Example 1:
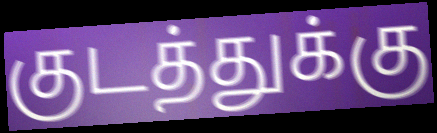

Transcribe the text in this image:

குடத்துக்கு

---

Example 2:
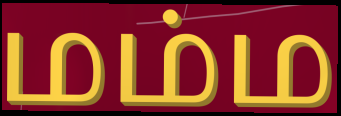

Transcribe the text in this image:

மம்ம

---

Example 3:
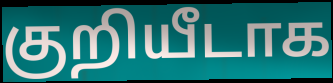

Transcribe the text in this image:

குறியீடாக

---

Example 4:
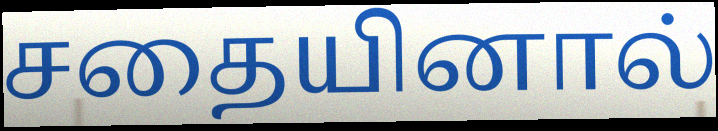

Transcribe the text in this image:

சதையினால்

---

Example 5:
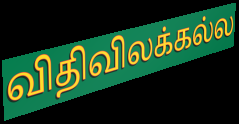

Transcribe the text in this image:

விதிவிலக்கல்ல